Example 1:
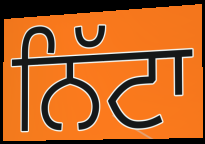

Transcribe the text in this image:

ਨਿੱਟਾ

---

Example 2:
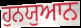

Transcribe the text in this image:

ਹੁਨਯੁਆਨ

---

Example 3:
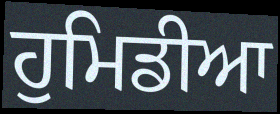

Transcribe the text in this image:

ਹੁਮਿਡੀਆ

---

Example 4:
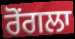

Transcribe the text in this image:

ਰੋਂਗਲਾ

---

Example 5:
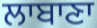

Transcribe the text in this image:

ਲਾਬਾਣਾ